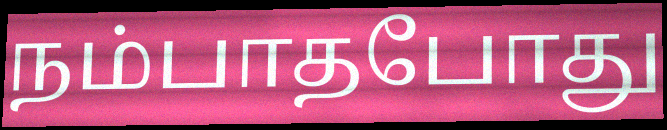
நம்பாதபோது